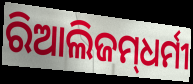
ରିଆଲିଜମ୍‌ଧର୍ମୀ